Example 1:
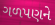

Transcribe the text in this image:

ગળપણને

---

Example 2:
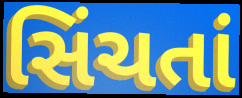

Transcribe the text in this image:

સિંચતાં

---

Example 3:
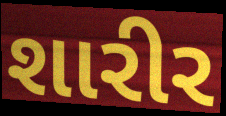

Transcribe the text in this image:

શારીર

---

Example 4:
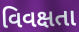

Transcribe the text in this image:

વિવક્ષતા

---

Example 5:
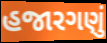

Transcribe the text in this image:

હજારગણું